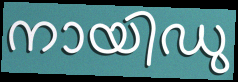
നായിഡു